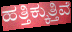
ಹತ್ತಿಕ್ಕುತ್ತಿವೆ